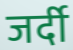
जर्दी